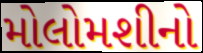
મોલોમશીનો